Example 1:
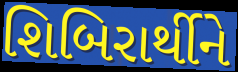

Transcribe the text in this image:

શિબિરાર્થીને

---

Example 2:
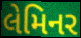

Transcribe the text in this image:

લેમિનર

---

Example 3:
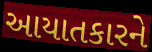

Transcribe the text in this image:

આયાતકારને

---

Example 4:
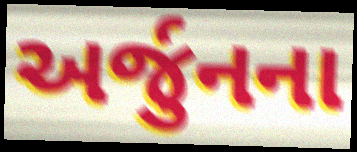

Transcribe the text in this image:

અર્જુનના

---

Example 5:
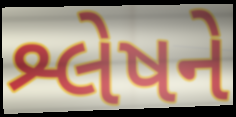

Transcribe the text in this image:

શ્લેષને